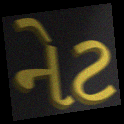
નેટ